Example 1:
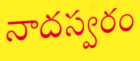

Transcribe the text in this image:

నాదస్వరం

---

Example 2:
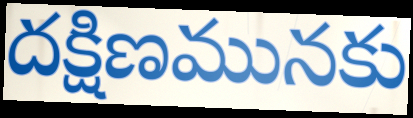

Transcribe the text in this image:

దక్షిణమునకు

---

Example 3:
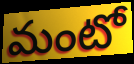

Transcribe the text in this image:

మంటో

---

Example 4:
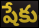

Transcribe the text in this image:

షేకు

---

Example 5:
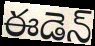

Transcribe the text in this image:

ఈడెన్